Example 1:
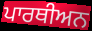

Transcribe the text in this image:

ਪਾਰਥੀਅਨ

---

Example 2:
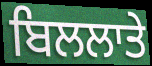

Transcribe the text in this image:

ਬਿਲਲਾਤੇ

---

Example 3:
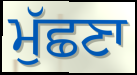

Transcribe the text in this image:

ਮੁੱਛਣਾ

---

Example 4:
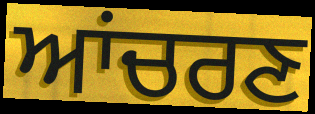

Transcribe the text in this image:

ਆਂਚਰਣ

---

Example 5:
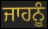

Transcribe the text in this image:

ਜਾਹਨੂੰ